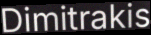
Dimitrakis